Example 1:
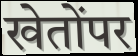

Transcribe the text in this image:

खेतोंपर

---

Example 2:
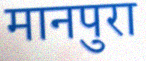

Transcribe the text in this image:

मानपुरा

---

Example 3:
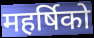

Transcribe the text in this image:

महर्षिको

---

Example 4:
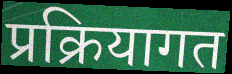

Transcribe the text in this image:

प्रक्रियागत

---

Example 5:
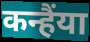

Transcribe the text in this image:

कन्हैंया